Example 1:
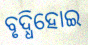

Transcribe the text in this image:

ବୃଦ୍ଧିହୋଇ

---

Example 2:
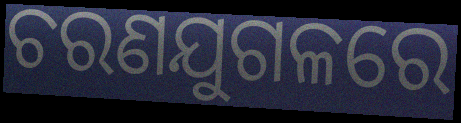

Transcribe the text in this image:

ଚରଣଯୁଗଳରେ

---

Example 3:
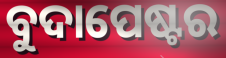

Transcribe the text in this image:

ବୁଦାପେଷ୍ଟର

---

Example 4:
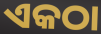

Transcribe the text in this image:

ଏକଠା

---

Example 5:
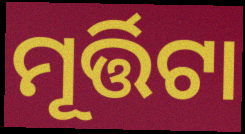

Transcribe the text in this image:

ମୂର୍ତ୍ତିଟା